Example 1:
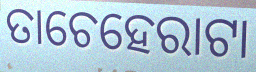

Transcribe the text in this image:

ତାଚେହେରାଟା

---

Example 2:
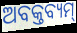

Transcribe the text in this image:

ଅବକ୍ତବ୍ୟମ୍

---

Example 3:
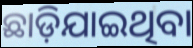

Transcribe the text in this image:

ଛାଡ଼ିଯାଇଥିବା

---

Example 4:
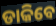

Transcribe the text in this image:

ଡାକିବେ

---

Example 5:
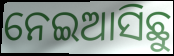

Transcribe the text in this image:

ନେଇଆସିଛୁ